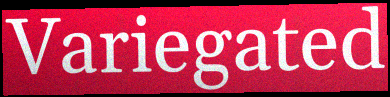
Variegated